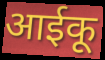
आईकू